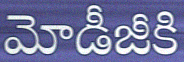
మోడీజీకి